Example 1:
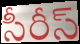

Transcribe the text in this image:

సీరీస్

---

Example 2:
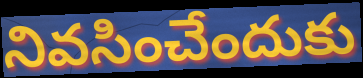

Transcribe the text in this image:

నివసించేందుకు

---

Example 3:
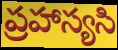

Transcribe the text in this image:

ప్రహాస్యసి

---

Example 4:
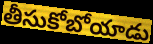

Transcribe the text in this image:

తీసుకోబోయాడు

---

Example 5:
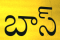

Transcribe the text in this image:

బాస్